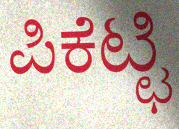
ಪಿಕೆಟ್ಟಿ